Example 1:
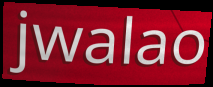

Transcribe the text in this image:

jwalao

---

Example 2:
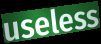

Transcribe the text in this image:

useless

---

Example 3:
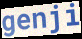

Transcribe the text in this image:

genji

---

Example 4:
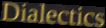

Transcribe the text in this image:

Dialectics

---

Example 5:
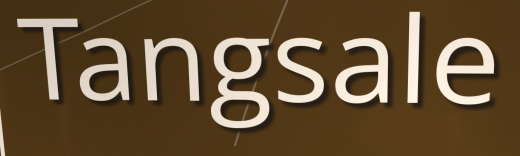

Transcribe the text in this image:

Tangsale